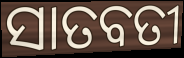
ସାତବତୀ